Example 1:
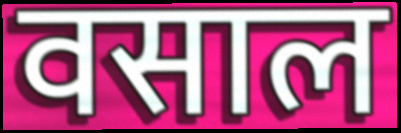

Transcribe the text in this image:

वसाल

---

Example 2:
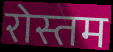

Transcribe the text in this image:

रोस्तम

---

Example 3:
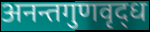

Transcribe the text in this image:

अनन्तगुणवृद्ध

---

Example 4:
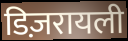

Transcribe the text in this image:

डिज़रायली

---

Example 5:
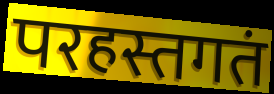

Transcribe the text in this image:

परहस्तगतं